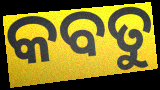
କବତୁ